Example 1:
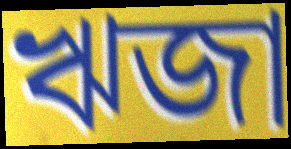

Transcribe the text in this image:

ঋজা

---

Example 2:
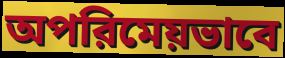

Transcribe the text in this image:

অপরিমেয়ভাবে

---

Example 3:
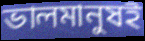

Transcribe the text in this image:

ভালমানুষই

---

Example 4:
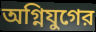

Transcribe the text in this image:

অগ্নিযুগের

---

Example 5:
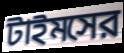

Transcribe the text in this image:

টাইমসের